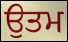
ਉਤਮ